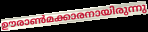
ഊരാൺമക്കാരനായിരുന്നു